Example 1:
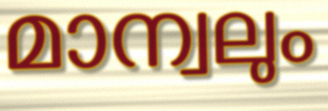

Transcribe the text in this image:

മാന്വലും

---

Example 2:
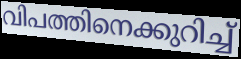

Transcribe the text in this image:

വിപത്തിനെക്കുറിച്ച്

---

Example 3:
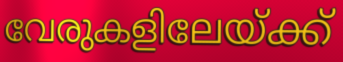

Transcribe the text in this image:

വേരുകളിലേയ്ക്ക്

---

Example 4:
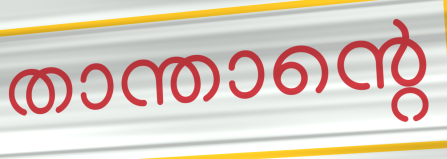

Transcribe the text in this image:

താന്താന്റെ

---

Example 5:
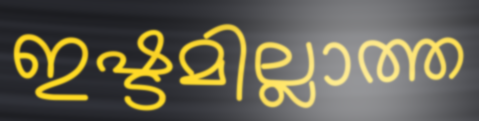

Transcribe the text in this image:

ഇഷ്ടമില്ലാത്ത